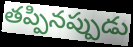
తప్పినప్పుడు